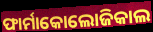
ଫାର୍ମାକୋଲୋଜିକାଲ